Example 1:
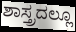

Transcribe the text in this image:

ಶಾಸ್ತ್ರದಲ್ಲೂ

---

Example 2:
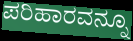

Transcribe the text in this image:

ಪರಿಹಾರವನ್ನೂ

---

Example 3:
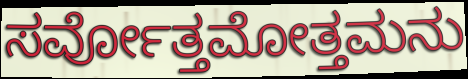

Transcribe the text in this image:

ಸರ್ವೋತ್ತಮೋತ್ತಮನು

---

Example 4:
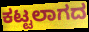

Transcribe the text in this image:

ಕಟ್ಟಲಾಗದ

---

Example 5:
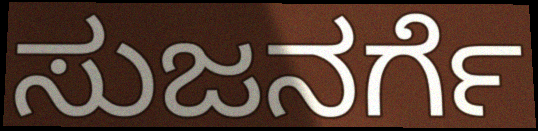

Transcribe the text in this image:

ಸುಜನರ್ಗೆ